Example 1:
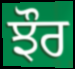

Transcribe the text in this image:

ਝੌਰ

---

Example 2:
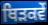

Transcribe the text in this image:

ਥਿੜਕਵੇਂ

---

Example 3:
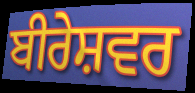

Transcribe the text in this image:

ਬੀਰੇਸ਼ਵਰ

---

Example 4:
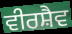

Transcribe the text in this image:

ਵੀਰਸ਼ੈਵ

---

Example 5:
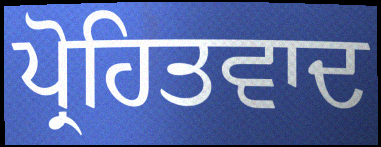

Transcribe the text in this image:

ਪ੍ਰੋਹਿਤਵਾਦ